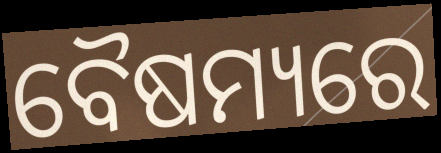
ବୈଷମ୍ୟରେ